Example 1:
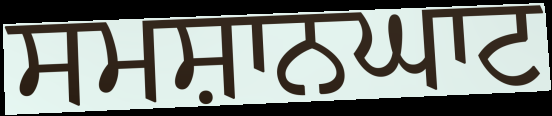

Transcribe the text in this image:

ਸਮਸ਼ਾਨਘਾਟ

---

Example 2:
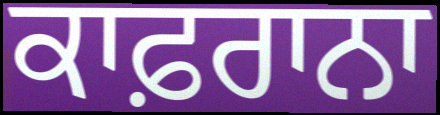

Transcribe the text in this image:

ਕਾਫ਼ਰਾਨਾ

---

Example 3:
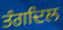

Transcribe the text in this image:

ਤੰਗਦਿਲ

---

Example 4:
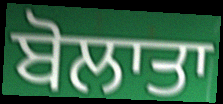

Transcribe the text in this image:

ਬੋਲਾਤਾ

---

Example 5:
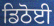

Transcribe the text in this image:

ਡਿਠੋਈ